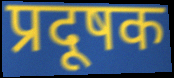
प्रदूषक